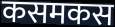
कसमकस